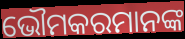
ଭୌମକରମାନଙ୍କ